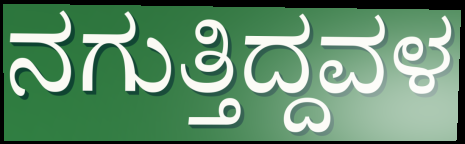
ನಗುತ್ತಿದ್ದವಳ